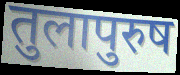
तुलापुरुष